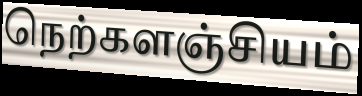
நெற்களஞ்சியம்